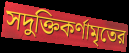
সদুক্তিকর্ণামৃতের